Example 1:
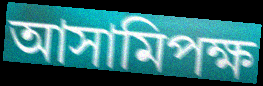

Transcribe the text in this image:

আসামিপক্ষ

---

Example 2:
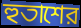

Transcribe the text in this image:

হুতাশের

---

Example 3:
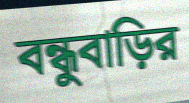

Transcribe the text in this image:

বন্ধুবাড়ির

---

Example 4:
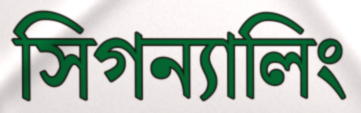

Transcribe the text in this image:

সিগন্যালিং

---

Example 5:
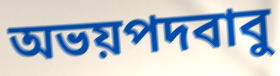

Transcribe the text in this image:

অভয়পদবাবু